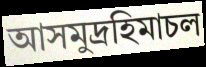
আসমুদ্রহিমাচল